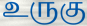
உருகு